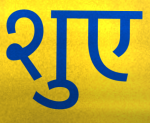
शुए